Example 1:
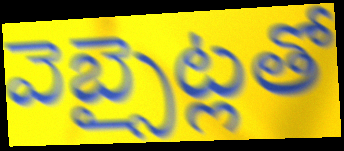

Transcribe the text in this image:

వెబ్సైట్లతో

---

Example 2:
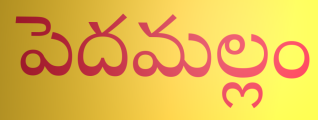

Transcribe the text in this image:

పెదమల్లం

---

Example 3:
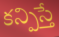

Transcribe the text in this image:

కన్పిస్తే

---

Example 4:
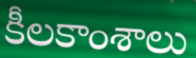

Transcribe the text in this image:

కీలకాంశాలు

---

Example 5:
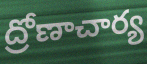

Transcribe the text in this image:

ద్రోణాచార్య